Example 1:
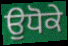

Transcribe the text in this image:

ਉਧੋਕੇ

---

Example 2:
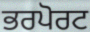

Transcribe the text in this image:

ਭਰਪੋਰਟ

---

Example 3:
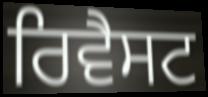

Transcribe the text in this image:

ਰਿਵੈਸਟ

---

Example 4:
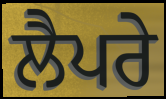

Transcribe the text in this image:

ਲੈਪਰੇ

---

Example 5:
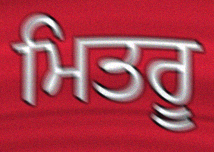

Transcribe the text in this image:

ਮਿਤਰੂ